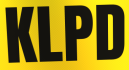
KLPD